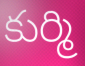
కుర్మి